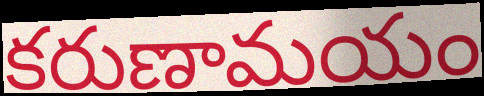
కరుణామయం